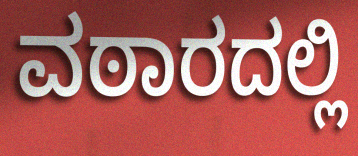
ವಠಾರದಲ್ಲಿ